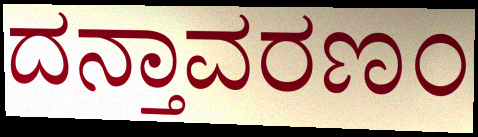
ದನ್ತಾವರಣಂ